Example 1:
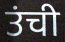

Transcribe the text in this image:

उंची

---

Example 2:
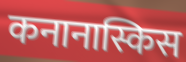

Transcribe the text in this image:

कनानास्किस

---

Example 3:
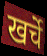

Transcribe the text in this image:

खर्चे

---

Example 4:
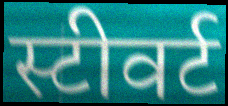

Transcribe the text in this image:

स्टीवर्ट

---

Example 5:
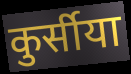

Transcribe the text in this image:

कुर्सीया